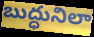
బుద్ధునిలా